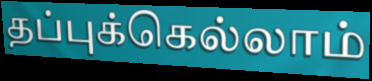
தப்புக்கெல்லாம்